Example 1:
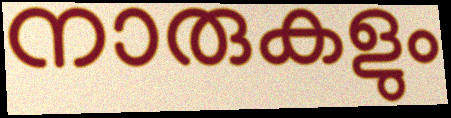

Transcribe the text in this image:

നാരുകളും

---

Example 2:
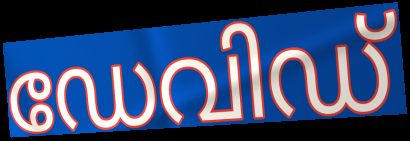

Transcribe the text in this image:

ഡേവിഡ്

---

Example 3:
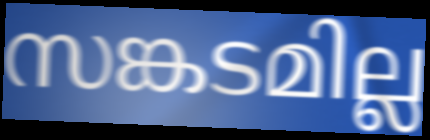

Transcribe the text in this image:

സങ്കടമില്ല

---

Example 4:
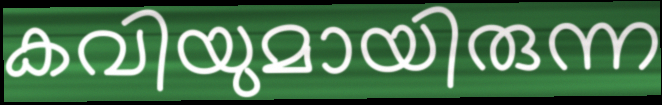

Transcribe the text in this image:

കവിയുമായിരുന്ന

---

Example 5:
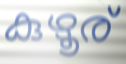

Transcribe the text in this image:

കുഴൂര്